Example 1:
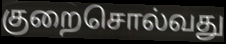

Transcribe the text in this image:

குறைசொல்வது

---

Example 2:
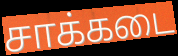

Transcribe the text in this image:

சாக்கடை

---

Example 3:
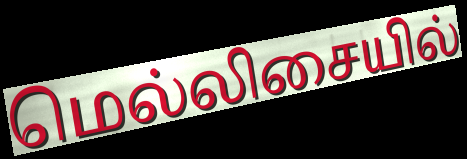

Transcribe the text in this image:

மெல்லிசையில்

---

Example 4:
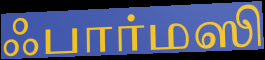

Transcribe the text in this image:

ஃபார்மஸி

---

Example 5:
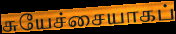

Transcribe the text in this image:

சுயேச்சையாகப்